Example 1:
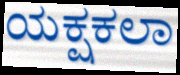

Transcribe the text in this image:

ಯಕ್ಷಕಲಾ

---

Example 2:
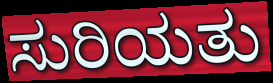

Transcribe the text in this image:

ಸುರಿಯತು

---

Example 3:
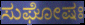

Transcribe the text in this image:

ಸುಘೋಷಃ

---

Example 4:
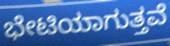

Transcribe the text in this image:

ಭೇಟಿಯಾಗುತ್ತವೆ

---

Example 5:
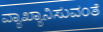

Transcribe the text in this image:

ವ್ಯಾಖ್ಯಾನಿಸುವಂತೆ